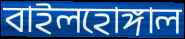
বাইলহোঙ্গাল